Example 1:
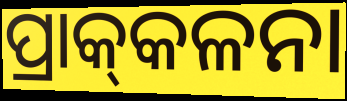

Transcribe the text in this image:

ପ୍ରାକ୍‌କଳନା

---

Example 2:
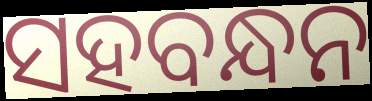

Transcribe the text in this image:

ସହବନ୍ଧନ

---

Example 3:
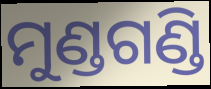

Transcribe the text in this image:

ମୁଣ୍ଡଗଣ୍ଡି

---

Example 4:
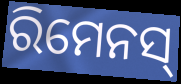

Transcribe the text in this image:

ରିମେନସ୍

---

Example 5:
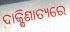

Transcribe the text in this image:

ଦାକ୍ଷିଣାତ୍ୟରେ